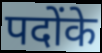
पदोंके